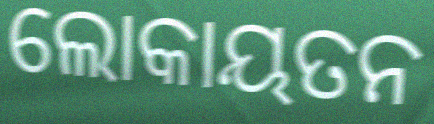
ଲୋକାୟତନ